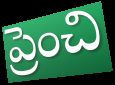
ప్రెంచి